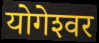
योगेश्‍वर